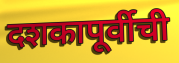
दशकापूर्वीची